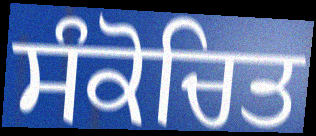
ਸੰਕੋਚਿਤ